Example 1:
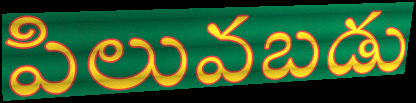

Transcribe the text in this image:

పిలువబడు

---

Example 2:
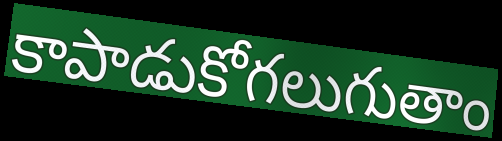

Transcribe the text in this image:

కాపాడుకోగలుగుతాం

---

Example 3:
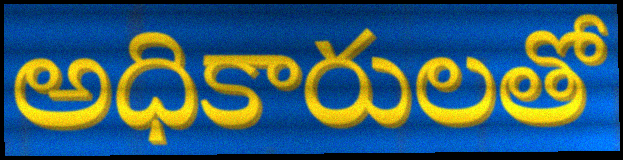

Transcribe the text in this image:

అధికారులతో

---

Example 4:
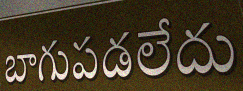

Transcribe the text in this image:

బాగుపడలేదు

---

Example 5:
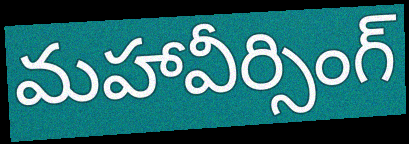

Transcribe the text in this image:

మహావీర్సింగ్